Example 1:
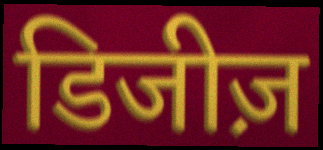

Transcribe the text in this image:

डिजीज़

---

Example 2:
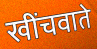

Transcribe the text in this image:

खींचवाते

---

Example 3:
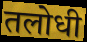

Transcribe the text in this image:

तलोधी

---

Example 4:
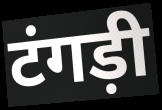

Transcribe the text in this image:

टंगड़ी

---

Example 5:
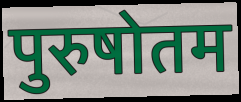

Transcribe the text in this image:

पुरुषोतम